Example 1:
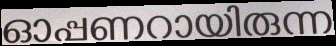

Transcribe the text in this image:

ഓപ്പണറായിരുന്ന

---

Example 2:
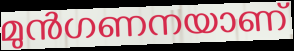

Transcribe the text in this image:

മുൻഗണനയാണ്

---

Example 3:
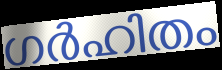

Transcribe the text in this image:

ഗർഹിതം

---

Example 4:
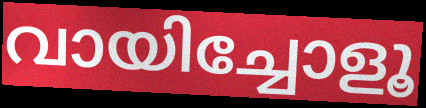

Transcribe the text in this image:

വായിച്ചോളൂ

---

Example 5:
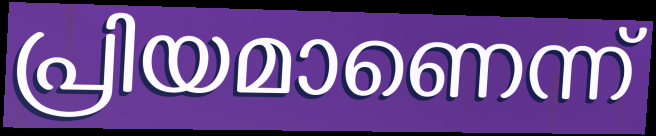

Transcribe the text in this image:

പ്രിയമാണെന്ന്